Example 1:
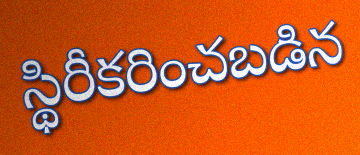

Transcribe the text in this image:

స్థిరీకరించబడిన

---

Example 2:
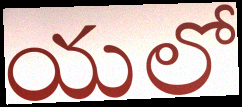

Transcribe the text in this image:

యలో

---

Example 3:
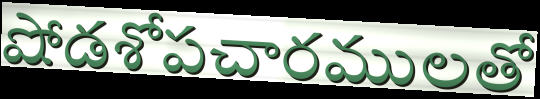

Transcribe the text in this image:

షోడశోపచారములతో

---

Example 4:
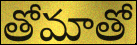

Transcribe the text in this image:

తోమాతో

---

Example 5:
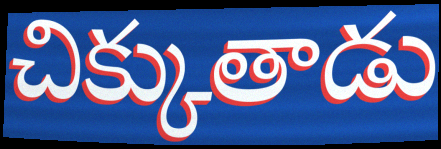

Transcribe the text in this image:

చిక్కుతాడు